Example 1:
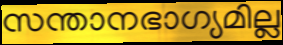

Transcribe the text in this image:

സന്താനഭാഗ്യമില്ല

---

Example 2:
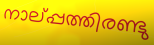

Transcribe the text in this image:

നാല്പ്പത്തിരണ്ടു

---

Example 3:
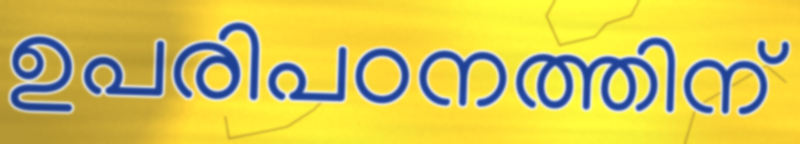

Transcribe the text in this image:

ഉപരിപഠനത്തിന്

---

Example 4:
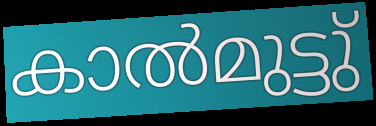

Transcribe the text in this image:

കാൽമുട്ടു്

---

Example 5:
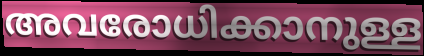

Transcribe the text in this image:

അവരോധിക്കാനുള്ള